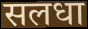
सलधा